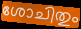
ശോചിതും